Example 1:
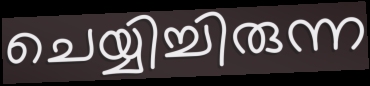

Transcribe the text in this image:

ചെയ്യിച്ചിരുന്ന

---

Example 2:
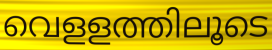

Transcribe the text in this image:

വെളളത്തിലൂടെ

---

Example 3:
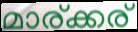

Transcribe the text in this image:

മാര്ക്കര്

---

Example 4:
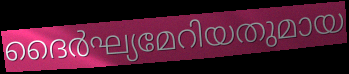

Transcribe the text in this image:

ദൈർഘ്യമേറിയതുമായ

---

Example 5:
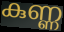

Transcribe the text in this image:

കുണ്ണ